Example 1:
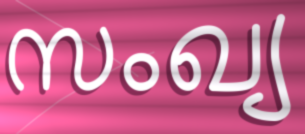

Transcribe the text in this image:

സംഖ്യ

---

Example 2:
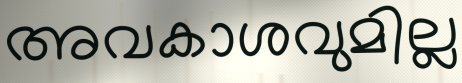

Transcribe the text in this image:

അവകാശവുമില്ല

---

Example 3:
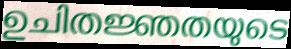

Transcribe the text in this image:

ഉചിതജ്ഞതയുടെ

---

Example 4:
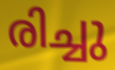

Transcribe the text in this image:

രിച്ചു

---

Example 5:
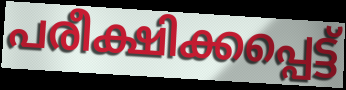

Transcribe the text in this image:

പരീക്ഷിക്കപ്പെട്ട്